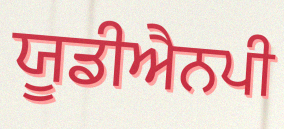
ਯੂਡੀਐਨਪੀ